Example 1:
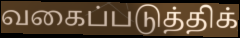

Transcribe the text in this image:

வகைப்படுத்திக்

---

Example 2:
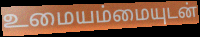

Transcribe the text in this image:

உமையம்மையுடன்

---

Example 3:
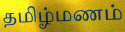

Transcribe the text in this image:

தமிழ்மணம்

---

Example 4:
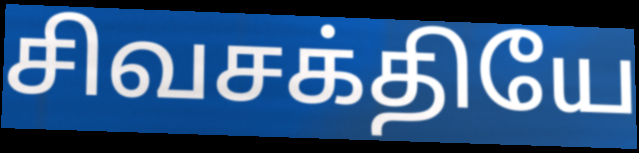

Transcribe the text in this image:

சிவசக்தியே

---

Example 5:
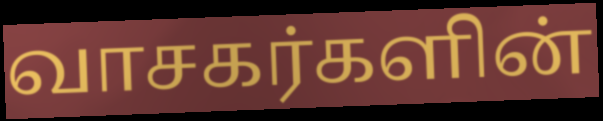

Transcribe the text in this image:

வாசகர்களின்